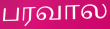
பரவால